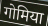
गोमिया